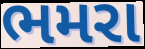
ભમરા